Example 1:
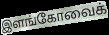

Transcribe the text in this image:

இளங்கோவைக்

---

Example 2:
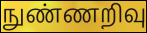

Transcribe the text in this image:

நுண்ணறிவு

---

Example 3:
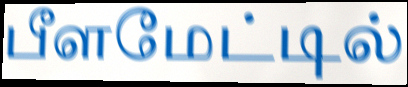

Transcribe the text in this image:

பீளமேட்டில்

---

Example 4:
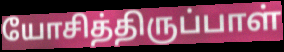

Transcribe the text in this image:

யோசித்திருப்பாள்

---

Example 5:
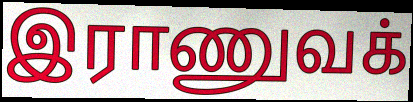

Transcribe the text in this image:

இராணுவக்